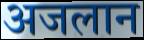
अजलान